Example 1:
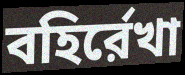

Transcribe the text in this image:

বহির্রেখা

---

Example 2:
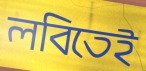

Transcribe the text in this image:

লবিতেই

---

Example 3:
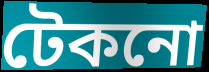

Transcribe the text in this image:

টেকনো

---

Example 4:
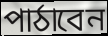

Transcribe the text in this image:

পাঠাবেন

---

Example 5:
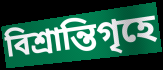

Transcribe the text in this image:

বিশ্রান্তিগৃহে